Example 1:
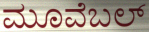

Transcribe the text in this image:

ಮೂವೆಬಲ್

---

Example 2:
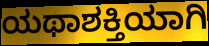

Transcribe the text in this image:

ಯಥಾಶಕ್ತಿಯಾಗಿ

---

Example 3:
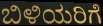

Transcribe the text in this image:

ಬಿಳಿಯರಿಗೆ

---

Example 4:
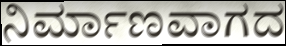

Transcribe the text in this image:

ನಿರ್ಮಾಣವಾಗದ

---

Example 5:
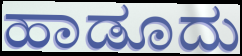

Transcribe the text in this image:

ಹಾಡೂದು